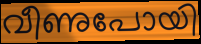
വീണുപോയി